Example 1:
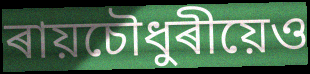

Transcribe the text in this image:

ৰায়চৌধুৰীয়েও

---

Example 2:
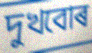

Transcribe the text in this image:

দুখবোৰ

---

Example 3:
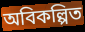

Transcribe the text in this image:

অবিকল্পিত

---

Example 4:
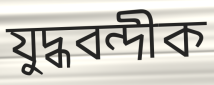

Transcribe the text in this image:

যুদ্ধবন্দীক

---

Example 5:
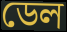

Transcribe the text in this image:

ডেল